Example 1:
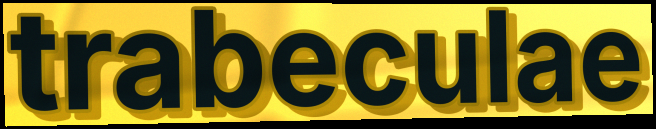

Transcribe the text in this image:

trabeculae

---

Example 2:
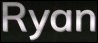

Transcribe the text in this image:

Ryan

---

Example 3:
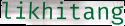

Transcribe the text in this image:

likhitang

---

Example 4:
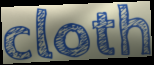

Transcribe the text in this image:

cloth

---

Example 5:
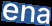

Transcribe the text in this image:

ena